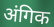
अंगिक